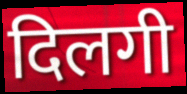
दिलगी